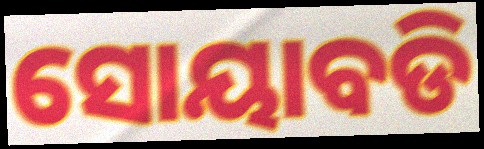
ସୋୟାବଡି